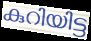
കുറിയിട്ട